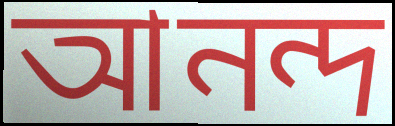
আনন্দ